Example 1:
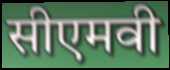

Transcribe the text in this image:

सीएमवी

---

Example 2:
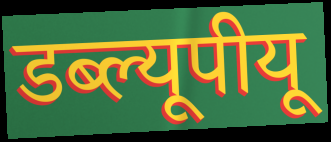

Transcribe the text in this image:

डब्ल्यूपीयू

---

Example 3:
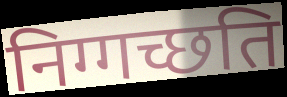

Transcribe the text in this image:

निग्गच्छति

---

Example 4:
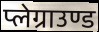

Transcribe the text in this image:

प्लेग्राउण्ड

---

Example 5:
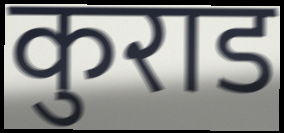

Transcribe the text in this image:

कुराड